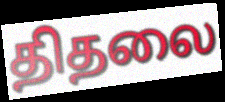
திதலை